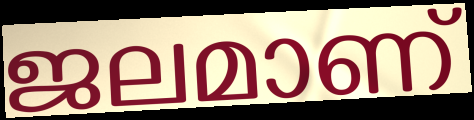
ജലമാണ്